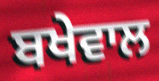
ਬਖੇਵਾਲ